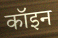
कॉइन